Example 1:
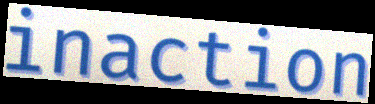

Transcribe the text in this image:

inaction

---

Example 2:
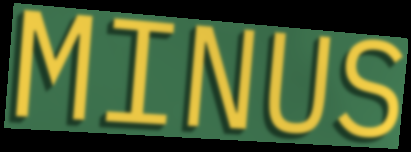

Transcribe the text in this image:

MINUS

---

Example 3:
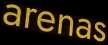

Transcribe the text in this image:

arenas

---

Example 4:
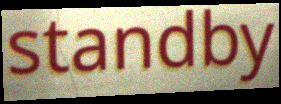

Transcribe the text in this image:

standby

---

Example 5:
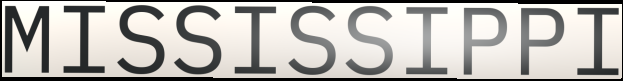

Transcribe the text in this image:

MISSISSIPPI